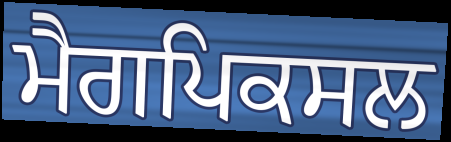
ਮੈਗਪਿਕਸਲ